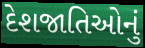
દેશજાતિઓનું